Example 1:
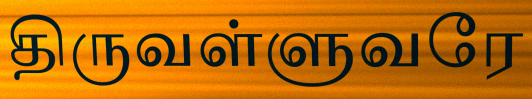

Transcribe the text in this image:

திருவள்ளுவரே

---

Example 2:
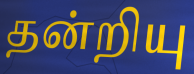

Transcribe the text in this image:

தன்றியு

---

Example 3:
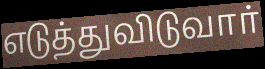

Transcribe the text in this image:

எடுத்துவிடுவார்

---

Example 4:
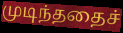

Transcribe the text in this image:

முடிந்ததைச்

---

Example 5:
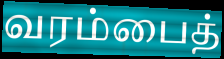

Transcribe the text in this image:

வரம்பைத்